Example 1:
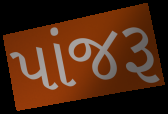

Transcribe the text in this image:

પાંજરૂ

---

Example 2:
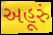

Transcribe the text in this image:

અહૂરું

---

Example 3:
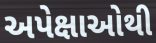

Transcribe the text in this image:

અપેક્ષાઓથી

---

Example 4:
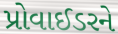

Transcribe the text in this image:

પ્રોવાઈડરને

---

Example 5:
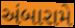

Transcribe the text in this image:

અંબારામે